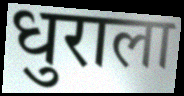
धुराला